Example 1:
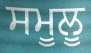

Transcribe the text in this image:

ਸਮੂਲੂ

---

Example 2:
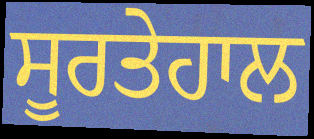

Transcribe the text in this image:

ਸੂਰਤੇਹਾਲ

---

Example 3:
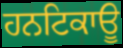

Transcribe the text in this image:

ਹਨਟਿਕਾਊ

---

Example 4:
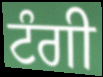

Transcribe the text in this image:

ਟੰਗੀ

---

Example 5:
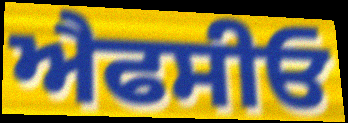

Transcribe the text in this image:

ਐਫਸੀਓ